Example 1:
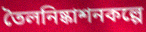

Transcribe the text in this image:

তৈলনিষ্কাশনকল্পে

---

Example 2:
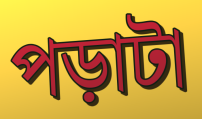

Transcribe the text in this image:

পড়াটা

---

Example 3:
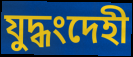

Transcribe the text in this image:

যুদ্ধংদেহী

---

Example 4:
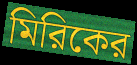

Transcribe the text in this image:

মিরিকের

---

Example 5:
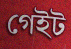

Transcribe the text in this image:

গেইট